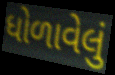
ધોળાવેલું